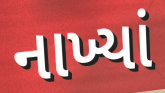
નાખ્યાં